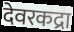
देवरकद्रा